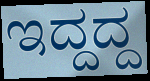
ಇದ್ದದ್ದ